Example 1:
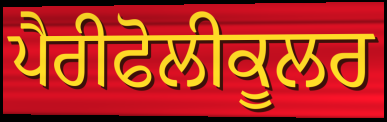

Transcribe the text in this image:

ਪੈਰੀਫੋਲੀਕੂਲਰ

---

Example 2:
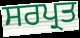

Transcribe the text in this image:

ਸਰਪ੍ਰਤ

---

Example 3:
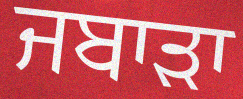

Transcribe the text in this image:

ਜਬਾੜਾ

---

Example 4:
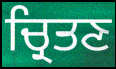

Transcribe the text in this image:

ਚ੍ਰਿਤਣ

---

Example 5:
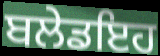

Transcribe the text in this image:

ਬਲੇਡਇਹ